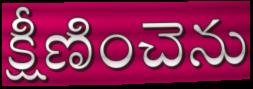
క్షీణించెను